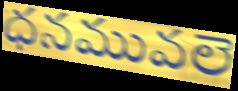
ధనమువలె